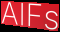
AIFs